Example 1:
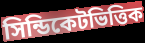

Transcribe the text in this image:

সিন্ডিকেটভিত্তিক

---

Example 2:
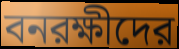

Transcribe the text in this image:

বনরক্ষীদের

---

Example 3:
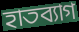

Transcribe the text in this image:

হাতব্যাগ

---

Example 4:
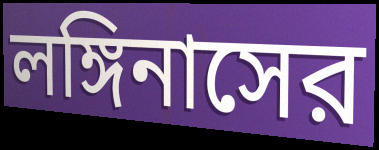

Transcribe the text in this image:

লঙ্গিনাসের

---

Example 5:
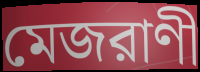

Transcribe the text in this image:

মেজরাণী